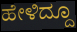
ಹೇಳಿದ್ದೂ